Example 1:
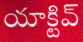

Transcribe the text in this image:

యాక్టివ్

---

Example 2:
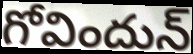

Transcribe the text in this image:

గోవిందున్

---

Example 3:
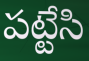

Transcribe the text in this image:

పట్టేసి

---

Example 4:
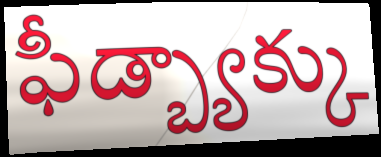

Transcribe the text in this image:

ఫీడ్బ్యాక్కు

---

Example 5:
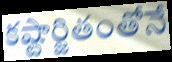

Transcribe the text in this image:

కష్టార్జితంతోనే